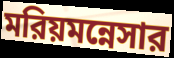
মরিয়মন্নেসার